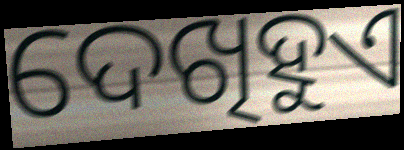
ଦେଖିହୁଏ